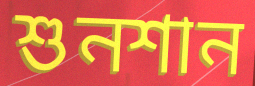
শুনশান